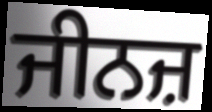
ਜੀਨਜ਼